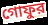
গোফুর